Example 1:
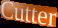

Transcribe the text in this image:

Cutter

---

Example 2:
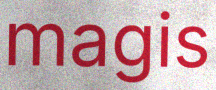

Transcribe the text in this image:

magis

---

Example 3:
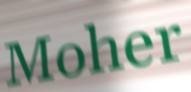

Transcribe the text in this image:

Moher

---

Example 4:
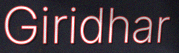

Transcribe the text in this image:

Giridhar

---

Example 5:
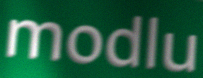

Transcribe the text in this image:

modlu